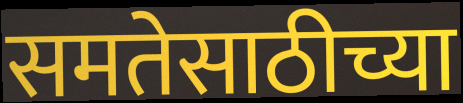
समतेसाठीच्या